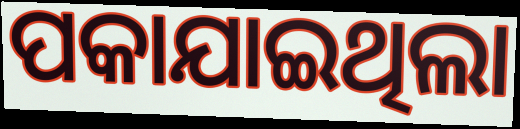
ପକାଯାଇଥିଲା